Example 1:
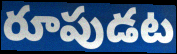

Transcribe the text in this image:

రూపుడట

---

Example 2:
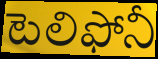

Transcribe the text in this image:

టెలిఫోనీ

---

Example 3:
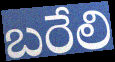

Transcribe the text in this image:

బరేలి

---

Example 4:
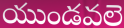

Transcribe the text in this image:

యుండవలె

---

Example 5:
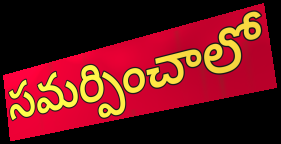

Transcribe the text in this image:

సమర్పించాలో